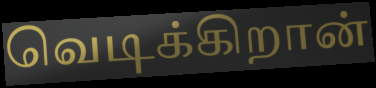
வெடிக்கிறான்